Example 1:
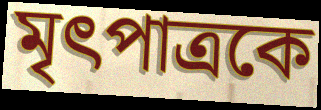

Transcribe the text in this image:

মৃৎপাত্রকে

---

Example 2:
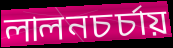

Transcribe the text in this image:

লালনচর্চায়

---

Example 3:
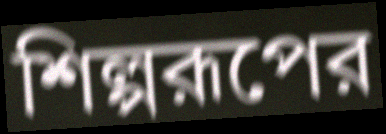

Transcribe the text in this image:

শিল্পরূপের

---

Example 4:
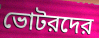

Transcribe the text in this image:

ভোটরদের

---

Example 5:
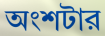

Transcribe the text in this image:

অংশটার